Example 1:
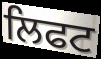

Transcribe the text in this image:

ਲਿਫਟ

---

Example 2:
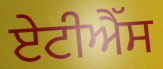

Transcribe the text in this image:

ਏਟੀਐੱਸ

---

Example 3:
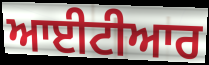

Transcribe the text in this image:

ਆਈਟੀਆਰ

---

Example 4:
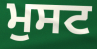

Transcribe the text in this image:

ਮੁਸਟ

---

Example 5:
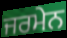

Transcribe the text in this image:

ਜਰਮੇਨ